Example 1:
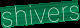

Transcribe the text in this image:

shivers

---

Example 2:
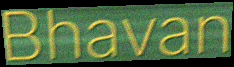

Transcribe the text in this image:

Bhavan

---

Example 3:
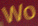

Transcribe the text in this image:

Wo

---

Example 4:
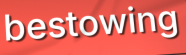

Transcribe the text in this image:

bestowing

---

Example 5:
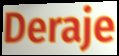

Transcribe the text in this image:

Deraje